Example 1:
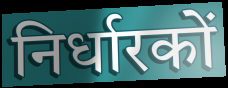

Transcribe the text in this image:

निर्धारकों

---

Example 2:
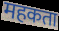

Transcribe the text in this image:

महकता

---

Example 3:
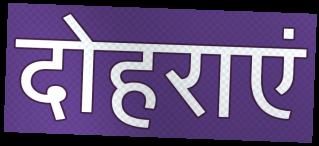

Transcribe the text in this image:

दोहराएं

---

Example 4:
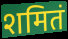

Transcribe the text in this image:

शमितं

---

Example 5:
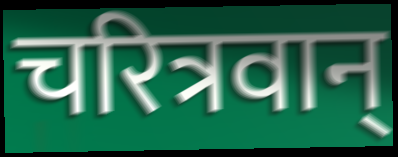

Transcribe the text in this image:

चरित्रवान्